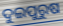
ଦୁଇପୁରୁଷ